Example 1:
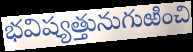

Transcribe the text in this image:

భవిష్యత్తునుగుఱించి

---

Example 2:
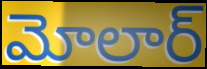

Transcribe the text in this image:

మోలార్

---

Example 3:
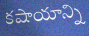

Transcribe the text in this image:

కషాయాన్ని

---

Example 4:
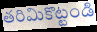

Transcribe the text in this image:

తరిమికొట్టండి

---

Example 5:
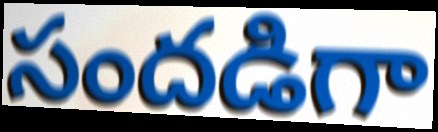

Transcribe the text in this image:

సందడిగా